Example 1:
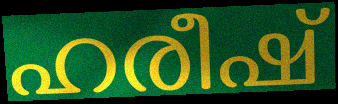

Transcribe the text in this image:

ഹരീഷ്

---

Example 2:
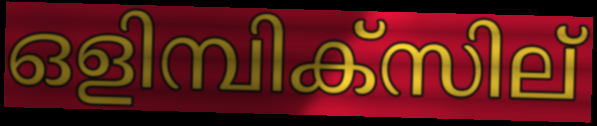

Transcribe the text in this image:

ഒളിമ്പിക്സില്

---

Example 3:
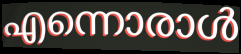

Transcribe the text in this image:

എന്നൊരാൾ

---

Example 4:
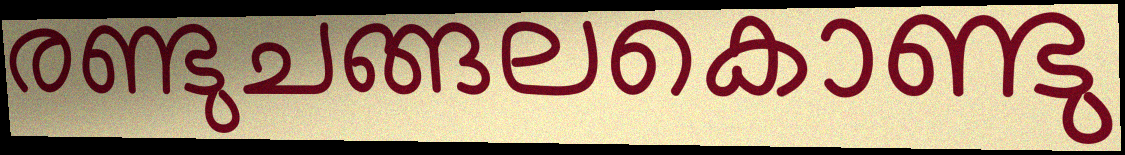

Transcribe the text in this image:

രണ്ടുചങ്ങലകൊണ്ടു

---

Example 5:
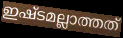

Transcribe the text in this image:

ഇഷ്ടമല്ലാത്തത്